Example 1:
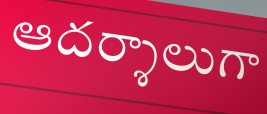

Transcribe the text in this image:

ఆదర్శాలుగా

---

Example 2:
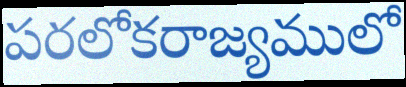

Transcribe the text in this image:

పరలోకరాజ్యములో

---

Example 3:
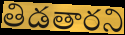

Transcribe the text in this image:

తిడతారని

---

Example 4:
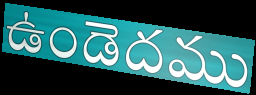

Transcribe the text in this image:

ఉండెదము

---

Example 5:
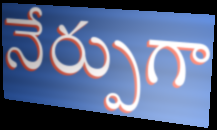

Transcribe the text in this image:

నేర్పుగా